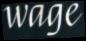
wage